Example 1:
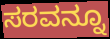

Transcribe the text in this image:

ಸರವನ್ನೂ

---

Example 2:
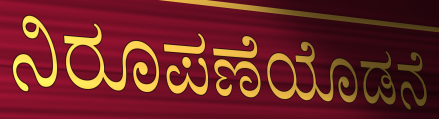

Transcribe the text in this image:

ನಿರೂಪಣೆಯೊಡನೆ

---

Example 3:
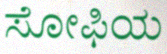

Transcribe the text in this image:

ಸೋಫಿಯ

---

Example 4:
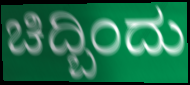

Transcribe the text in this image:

ಚಿದ್ಬಿಂದು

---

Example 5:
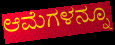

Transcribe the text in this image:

ಆಮೆಗಳನ್ನೂ